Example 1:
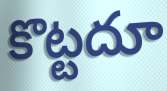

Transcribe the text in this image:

కొట్టదూ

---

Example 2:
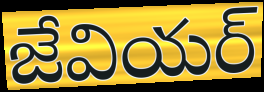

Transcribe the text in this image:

జేవియర్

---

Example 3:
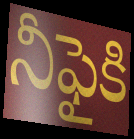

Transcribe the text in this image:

నీఫైకి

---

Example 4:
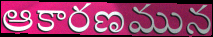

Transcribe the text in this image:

ఆకారణమున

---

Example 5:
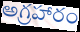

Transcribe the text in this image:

అగ్రహారం